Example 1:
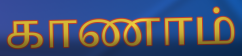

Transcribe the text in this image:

காணாம்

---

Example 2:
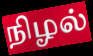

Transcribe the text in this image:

நிழல்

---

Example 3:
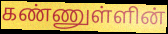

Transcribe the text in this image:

கண்ணுள்ளின்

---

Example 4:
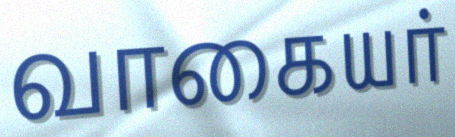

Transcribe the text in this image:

வாகையர்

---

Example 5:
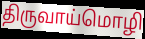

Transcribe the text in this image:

திருவாய்மொழி